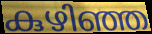
കുഴിഞ്ഞ